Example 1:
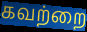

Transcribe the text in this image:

கவற்றை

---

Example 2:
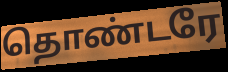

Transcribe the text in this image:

தொண்டரே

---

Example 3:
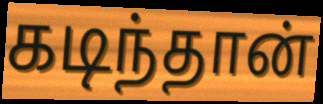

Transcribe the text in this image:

கடிந்தான்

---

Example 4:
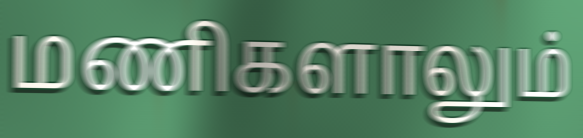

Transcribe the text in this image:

மணிகளாலும்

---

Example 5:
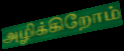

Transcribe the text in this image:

அழிக்கிறோம்